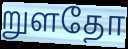
றுளதோ